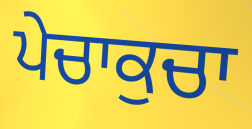
ਪੇਚਾਕੁਚਾ